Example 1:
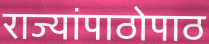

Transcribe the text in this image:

राज्यांपाठोपाठ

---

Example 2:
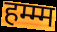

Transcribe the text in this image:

हम्म्म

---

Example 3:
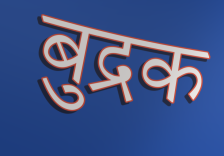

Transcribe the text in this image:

बुद्रक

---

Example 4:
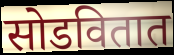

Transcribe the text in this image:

सोडवितात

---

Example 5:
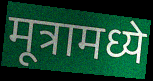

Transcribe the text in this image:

मूत्रामध्ये